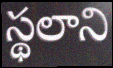
స్థలాని